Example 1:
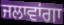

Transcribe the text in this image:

ਜਲਾਵਾਂਗਾ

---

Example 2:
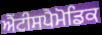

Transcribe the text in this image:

ਐਂਟੀਸਪੈਮੋਡਿਕ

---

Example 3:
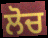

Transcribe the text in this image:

ਲੋਚ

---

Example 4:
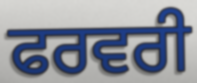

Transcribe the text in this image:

ਫਰਵਰੀ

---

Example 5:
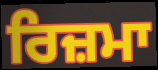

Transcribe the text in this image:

ਰਿਜ਼ਮਾ